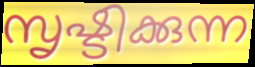
സൃഷ്ടിക്കുന്ന